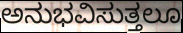
ಅನುಭವಿಸುತ್ತಲೂ